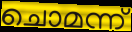
ചൊമന്ന്